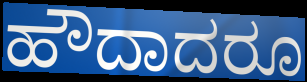
ಹೌದಾದರೂ